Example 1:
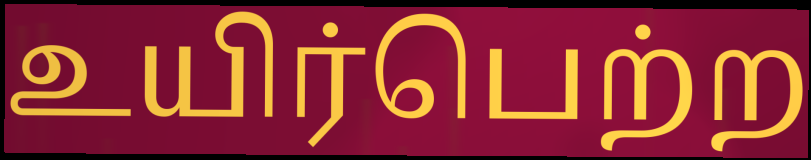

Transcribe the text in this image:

உயிர்பெற்ற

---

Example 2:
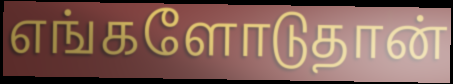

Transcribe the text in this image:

எங்களோடுதான்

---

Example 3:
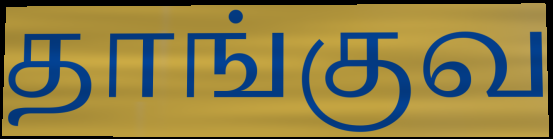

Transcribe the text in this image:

தாங்குவ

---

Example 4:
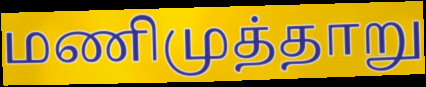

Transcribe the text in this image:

மணிமுத்தாறு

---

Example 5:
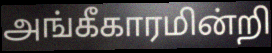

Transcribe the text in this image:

அங்கீகாரமின்றி